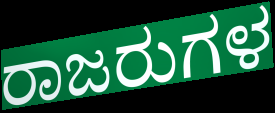
ರಾಜರುಗಳ